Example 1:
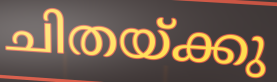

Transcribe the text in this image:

ചിതയ്ക്കു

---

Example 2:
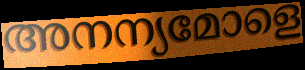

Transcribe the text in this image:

അനന്യമോളെ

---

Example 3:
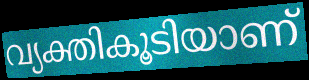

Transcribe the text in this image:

വ്യക്തികൂടിയാണ്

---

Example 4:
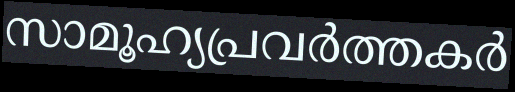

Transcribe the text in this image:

സാമൂഹ്യപ്രവർത്തകർ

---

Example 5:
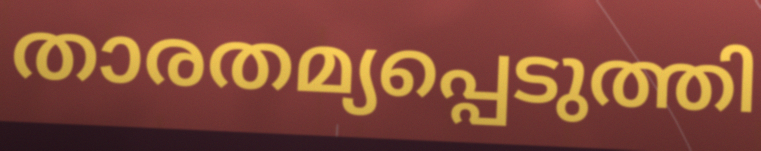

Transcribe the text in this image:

താരതമ്യപ്പെടുത്തി